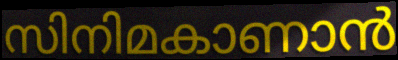
സിനിമകാണാൻ